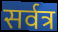
सर्वत्र